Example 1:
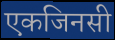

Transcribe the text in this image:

एकजिनसी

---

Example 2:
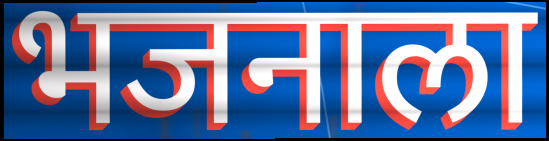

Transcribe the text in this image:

भजनाला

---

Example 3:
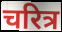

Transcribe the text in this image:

चरित्र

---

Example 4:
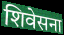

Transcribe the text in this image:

शिवेसना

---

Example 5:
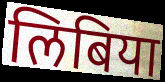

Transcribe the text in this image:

लिबिया